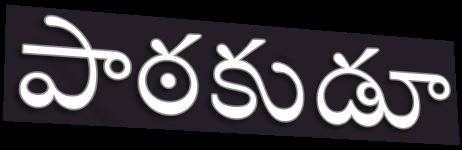
పాఠకుడూ